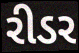
રીડર